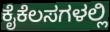
ಕೈಕೆಲಸಗಳಲ್ಲಿ